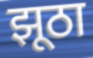
झूठा